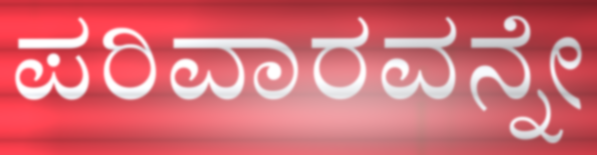
ಪರಿವಾರವನ್ನೇ